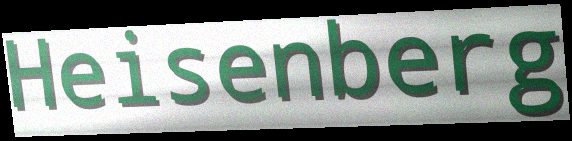
Heisenberg